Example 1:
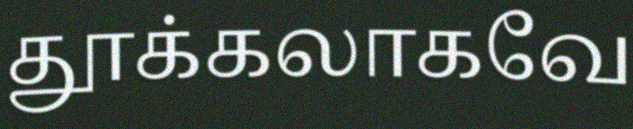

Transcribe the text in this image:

தூக்கலாகவே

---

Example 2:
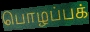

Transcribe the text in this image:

பொழப்பக்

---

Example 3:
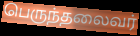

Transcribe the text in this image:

பெருந்தலைவர்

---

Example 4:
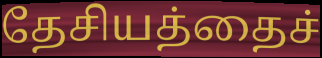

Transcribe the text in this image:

தேசியத்தைச்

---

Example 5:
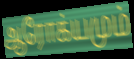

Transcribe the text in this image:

ஆரோக்யமும்